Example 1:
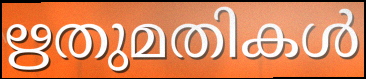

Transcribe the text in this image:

ഋതുമതികൾ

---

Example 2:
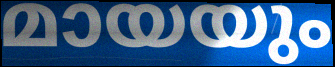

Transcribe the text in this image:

മായയും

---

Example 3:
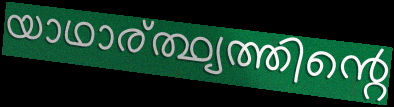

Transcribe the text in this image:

യാഥാര്ത്ഥ്യത്തിന്റെ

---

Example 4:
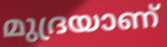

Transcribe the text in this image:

മുദ്രയാണ്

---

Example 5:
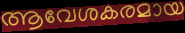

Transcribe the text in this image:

ആവേശകരമായ